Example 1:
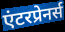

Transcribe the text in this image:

एंटरप्रेनर्स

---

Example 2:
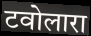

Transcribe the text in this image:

टवोलारा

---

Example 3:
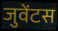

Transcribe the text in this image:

जुवेंटस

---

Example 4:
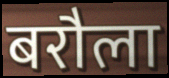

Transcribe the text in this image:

बरौला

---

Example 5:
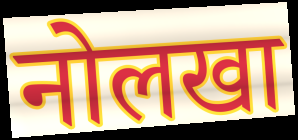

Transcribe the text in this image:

नोलखा